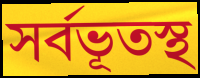
সর্বভূতস্থ